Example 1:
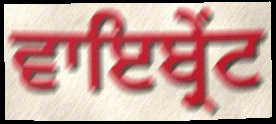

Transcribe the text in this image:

ਵਾਇਬ੍ਰੇਂਟ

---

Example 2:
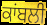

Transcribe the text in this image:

ਕਾਂਬਲੀ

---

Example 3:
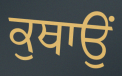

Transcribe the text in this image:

ਕੁਥਾਉਂ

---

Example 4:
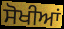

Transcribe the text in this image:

ਸੋਖੀਆਂ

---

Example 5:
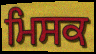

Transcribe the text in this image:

ਮਿਸਕ